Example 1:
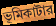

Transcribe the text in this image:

ভূমিকাটার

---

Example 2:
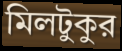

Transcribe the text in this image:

মিলটুকুর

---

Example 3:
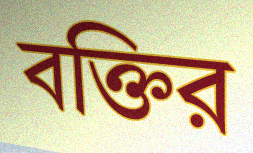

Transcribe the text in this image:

বক্তির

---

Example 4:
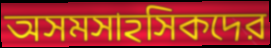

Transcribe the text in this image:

অসমসাহসিকদের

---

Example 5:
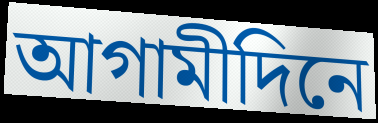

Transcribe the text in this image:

আগামীদিনে